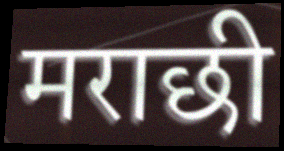
मराछी